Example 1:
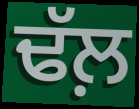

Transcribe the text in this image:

ਢੱਲ਼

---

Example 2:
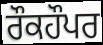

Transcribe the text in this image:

ਰੌਕਹੌਪਰ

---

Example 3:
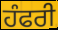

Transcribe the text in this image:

ਹੰਫਰੀ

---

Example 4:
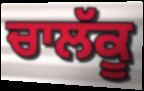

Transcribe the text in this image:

ਚਾਲੱਕੂ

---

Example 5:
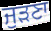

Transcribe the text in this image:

ਜੁੜਣਾ